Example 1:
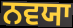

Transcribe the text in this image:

ਨਵਯਾ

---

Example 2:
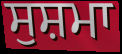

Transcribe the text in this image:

ਸੁਸ਼ਮਾ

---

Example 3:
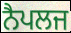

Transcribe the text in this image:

ਨੈਪਲਜ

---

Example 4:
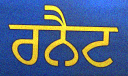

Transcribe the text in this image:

ਰਨੈਟ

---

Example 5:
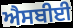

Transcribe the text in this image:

ਐਸਬੀਈ